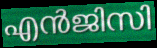
എൻജിസി